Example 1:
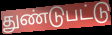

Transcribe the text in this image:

துண்டுபட்டு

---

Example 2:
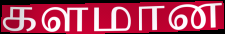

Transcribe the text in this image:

களமான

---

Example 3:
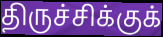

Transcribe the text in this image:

திருச்சிக்குக்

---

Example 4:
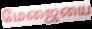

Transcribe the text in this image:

மேஜையை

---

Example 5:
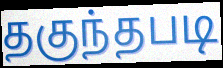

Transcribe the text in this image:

தகுந்தபடி